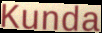
Kunda